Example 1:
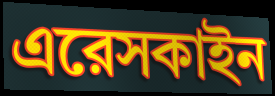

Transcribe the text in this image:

এরেসকাইন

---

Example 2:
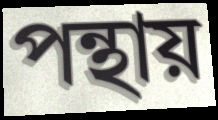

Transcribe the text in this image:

পন্থায়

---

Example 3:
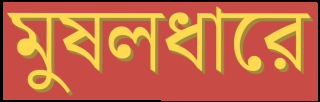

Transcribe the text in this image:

মুষলধারে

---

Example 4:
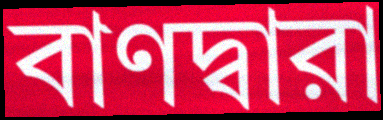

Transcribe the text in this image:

বাণদ্বারা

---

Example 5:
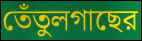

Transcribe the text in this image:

তেঁতুলগাছের